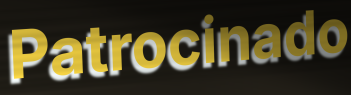
Patrocinado